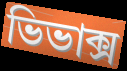
ভিভাক্স